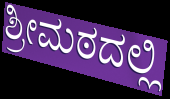
ಶ್ರೀಮಠದಲ್ಲಿ